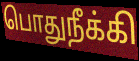
பொதுநீக்கி